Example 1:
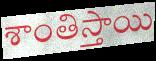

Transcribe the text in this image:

శాంతిస్తాయి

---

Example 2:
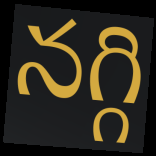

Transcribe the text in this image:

నగ్గి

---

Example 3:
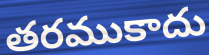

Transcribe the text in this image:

తరముకాదు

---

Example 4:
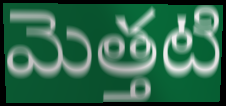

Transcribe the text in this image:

మెత్తటి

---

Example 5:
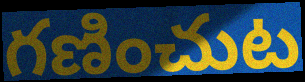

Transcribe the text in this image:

గణించుట